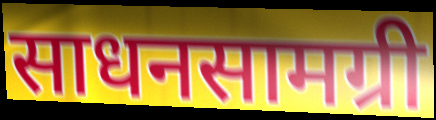
साधनसामग्री